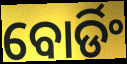
ବୋର୍ଡିଂ